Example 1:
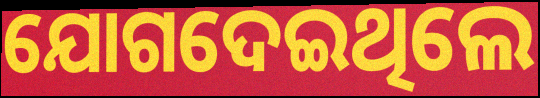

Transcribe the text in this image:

ଯୋଗଦେଇଥିଲେ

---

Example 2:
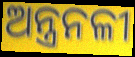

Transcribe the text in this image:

ଅନ୍ତ୍ରନଳୀ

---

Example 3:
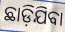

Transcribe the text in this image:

ଛାଡ଼ିଯିବା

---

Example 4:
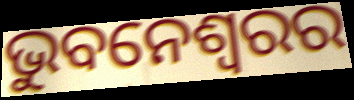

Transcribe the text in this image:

ଭୁବନେଶ୍ବରର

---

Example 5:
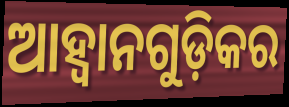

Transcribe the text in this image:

ଆହ୍ୱାନଗୁଡ଼ିକର